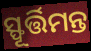
ସ୍ଫୂର୍ତ୍ତିମନ୍ତ